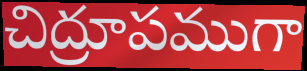
చిద్రూపముగా